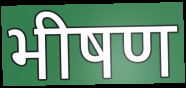
भीषण